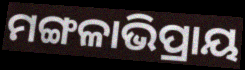
ମଙ୍ଗଳାଭିପ୍ରାୟ